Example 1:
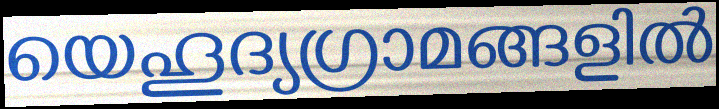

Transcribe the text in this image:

യെഹൂദ്യഗ്രാമങ്ങളിൽ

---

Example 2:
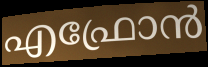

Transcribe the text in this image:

എഫ്രോൻ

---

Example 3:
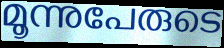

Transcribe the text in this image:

മൂന്നുപേരുടെ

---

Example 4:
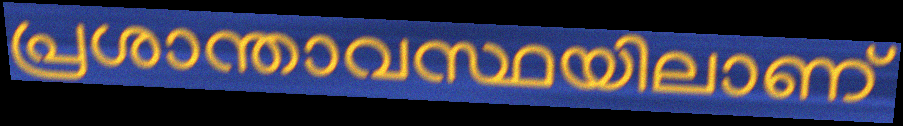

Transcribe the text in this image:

പ്രശാന്താവസ്ഥയിലാണ്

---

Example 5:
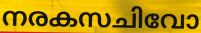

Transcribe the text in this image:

നരകസചിവോ